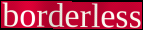
borderless